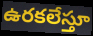
ఉరకలేస్తూ